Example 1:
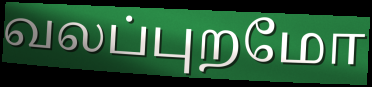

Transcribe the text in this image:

வலப்புறமோ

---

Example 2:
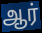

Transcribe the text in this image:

ஆர்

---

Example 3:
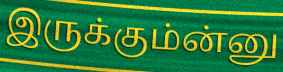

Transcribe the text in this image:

இருக்கும்ன்னு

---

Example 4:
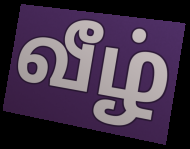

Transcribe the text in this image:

வீழ்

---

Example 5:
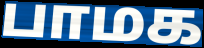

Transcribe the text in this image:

பாமக